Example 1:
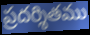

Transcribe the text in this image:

ప్రదర్శితము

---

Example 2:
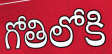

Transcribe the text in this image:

గోతిలోకి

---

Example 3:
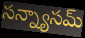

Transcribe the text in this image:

సన్న్యాసమ్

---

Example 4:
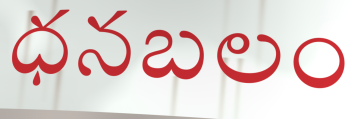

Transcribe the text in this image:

ధనబలం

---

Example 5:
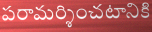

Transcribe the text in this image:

పరామర్శించటానికి